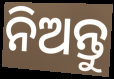
ନିଅନ୍ତୁ